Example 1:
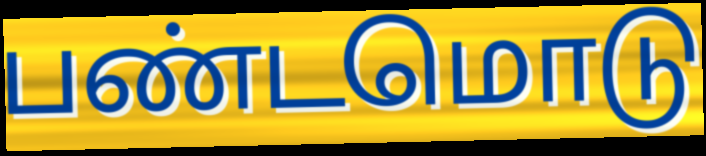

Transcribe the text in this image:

பண்டமொடு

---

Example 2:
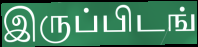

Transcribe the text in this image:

இருப்பிடங்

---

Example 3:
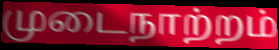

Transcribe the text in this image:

முடைநாற்றம்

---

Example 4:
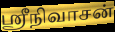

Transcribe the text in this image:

ஸ்ரீநிவாசன்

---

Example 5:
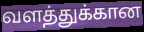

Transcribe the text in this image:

வளத்துக்கான